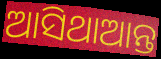
ଆସିଥାଆନ୍ତ